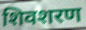
शिवशरण